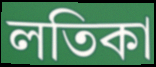
লতিকা